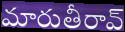
మారుతీరావ్